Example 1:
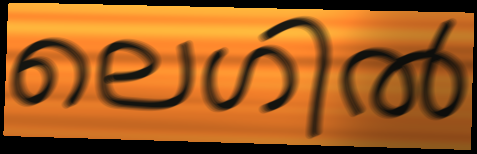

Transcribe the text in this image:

ലെഗിൽ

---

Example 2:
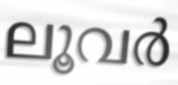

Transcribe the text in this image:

ലൂവർ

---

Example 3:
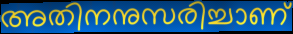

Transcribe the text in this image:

അതിനനുസരിച്ചാണ്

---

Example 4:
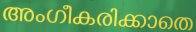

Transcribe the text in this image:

അംഗീകരിക്കാതെ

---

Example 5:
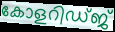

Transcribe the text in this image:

കോളറിഡ്ജ്